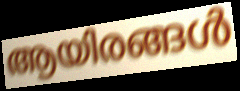
ആയിരങ്ങൾ